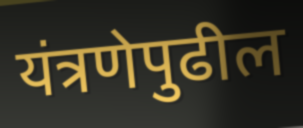
यंत्रणेपुढील